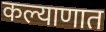
कल्याणात